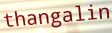
thangalin